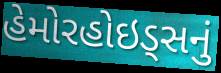
હેમોરહોઇડ્સનું